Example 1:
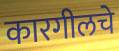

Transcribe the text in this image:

कारगीलचे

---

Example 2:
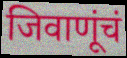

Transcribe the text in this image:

जिवाणूंचं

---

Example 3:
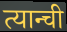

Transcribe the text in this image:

त्यान्ची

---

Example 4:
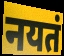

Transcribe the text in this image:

नयतं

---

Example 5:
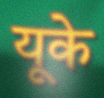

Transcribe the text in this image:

यूके